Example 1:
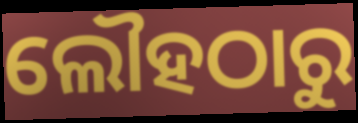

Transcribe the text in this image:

ଲୌହଠାରୁ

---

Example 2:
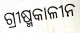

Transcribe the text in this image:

ଗ୍ରୀଷ୍ମକାଳୀନ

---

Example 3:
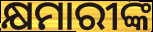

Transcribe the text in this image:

କ୍ଷମାରୀଙ୍କ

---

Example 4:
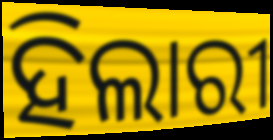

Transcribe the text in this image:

ହିଲାରୀ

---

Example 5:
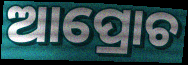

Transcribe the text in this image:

ଆପ୍ରୋଚ